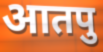
आतपु